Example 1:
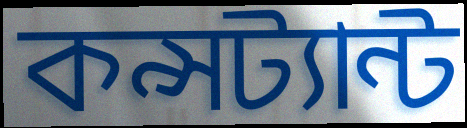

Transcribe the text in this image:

কন্সট্যান্ট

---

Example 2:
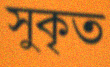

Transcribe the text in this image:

সুকৃত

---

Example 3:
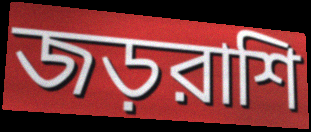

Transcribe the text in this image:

জড়রাশি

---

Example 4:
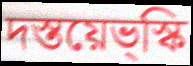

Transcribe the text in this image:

দস্তয়েভ্স্কি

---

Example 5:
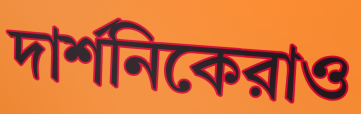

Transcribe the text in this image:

দার্শনিকেরাও